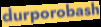
durporobash